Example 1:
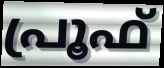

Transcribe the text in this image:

പ്രൂഫ്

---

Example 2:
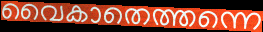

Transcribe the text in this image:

വൈകാതെത്തന്നെ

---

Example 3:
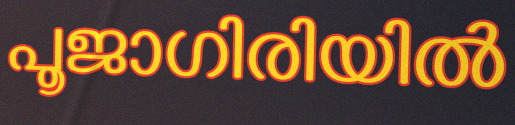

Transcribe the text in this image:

പൂജാഗിരിയിൽ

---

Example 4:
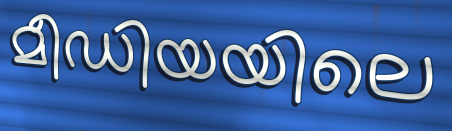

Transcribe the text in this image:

മീഡിയയിലെ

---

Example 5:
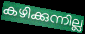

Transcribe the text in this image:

കഴിക്കുന്നില്ല